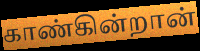
காண்கின்றான்